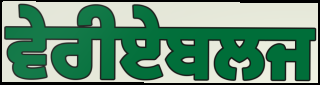
ਵੇਰੀਏਬਲਜ